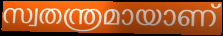
സ്വതന്ത്രമായാണ്